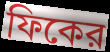
ফিকের